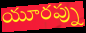
యూరప్ను